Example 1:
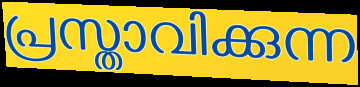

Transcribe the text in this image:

പ്രസ്താവിക്കുന്ന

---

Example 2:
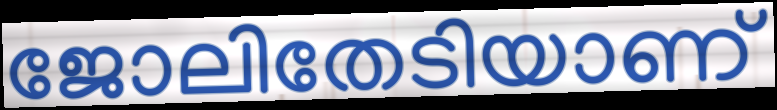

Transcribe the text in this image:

ജോലിതേടിയാണ്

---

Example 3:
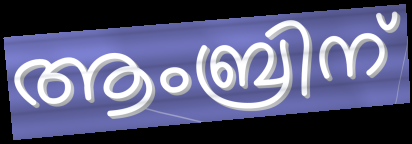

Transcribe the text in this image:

ആംബ്രിന്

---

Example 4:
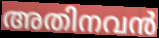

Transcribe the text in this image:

അതിനവൻ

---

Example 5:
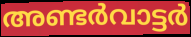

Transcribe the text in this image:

അണ്ടർവാട്ടർ